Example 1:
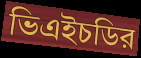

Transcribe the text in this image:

ভিএইচডির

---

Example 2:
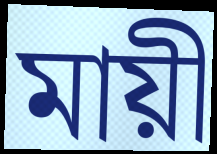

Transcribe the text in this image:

মায়ী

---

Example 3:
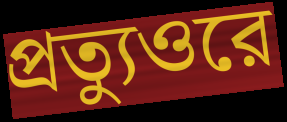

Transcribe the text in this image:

প্রত্যুওরে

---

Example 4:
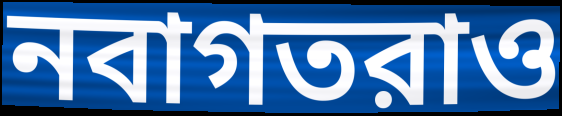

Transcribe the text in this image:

নবাগতরাও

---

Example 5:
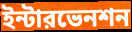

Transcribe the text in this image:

ইন্টারভেনশন